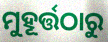
ମୁହୂର୍ତ୍ତଠାରୁ